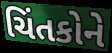
ચિંતકોને